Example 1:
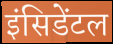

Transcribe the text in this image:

इंसिडेंटल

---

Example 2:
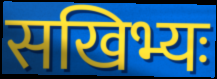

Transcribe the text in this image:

सखिभ्यः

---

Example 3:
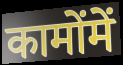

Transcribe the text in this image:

कामोंमें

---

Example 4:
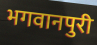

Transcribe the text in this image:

भगवानपुरी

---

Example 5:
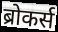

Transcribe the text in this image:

ब्रोकर्स